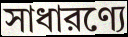
সাধারণ্যে